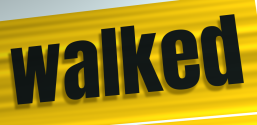
walked